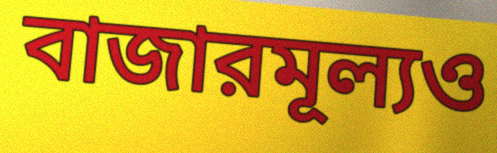
বাজারমূল্যও